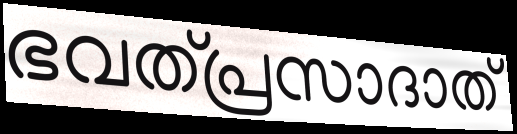
ഭവത്പ്രസാദാത്